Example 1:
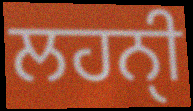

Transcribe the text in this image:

ਲਹਨੑੀ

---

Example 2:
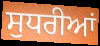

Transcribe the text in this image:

ਸੁਧਰੀਆਂ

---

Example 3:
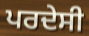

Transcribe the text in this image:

ਪਰਦੇਸੀ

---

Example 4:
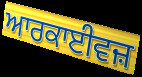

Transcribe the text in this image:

ਆਰਕਾਈਵਜ਼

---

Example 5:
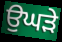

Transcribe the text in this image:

ਉਘੜੇ